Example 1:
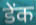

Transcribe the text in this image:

डेंक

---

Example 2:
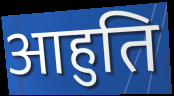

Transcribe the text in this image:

आहुति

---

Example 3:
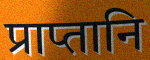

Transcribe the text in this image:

प्राप्तानि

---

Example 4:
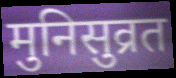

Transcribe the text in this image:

मुनिसुव्रत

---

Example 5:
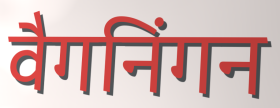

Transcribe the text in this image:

वैगनिंगन